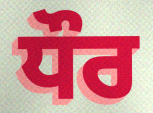
ਧੌਰ